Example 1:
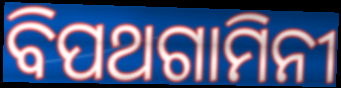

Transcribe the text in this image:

ବିପଥଗାମିନୀ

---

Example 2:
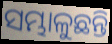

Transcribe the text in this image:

ସମ୍ଭାଳୁଛନ୍ତି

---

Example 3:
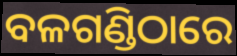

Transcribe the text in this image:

ବଳଗଣ୍ଡିଠାରେ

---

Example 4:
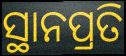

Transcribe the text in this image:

ସ୍ଥାନପ୍ରତି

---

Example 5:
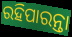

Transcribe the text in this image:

ରହିପାରନ୍ତା